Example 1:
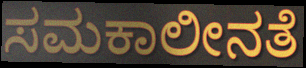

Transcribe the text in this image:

ಸಮಕಾಲೀನತೆ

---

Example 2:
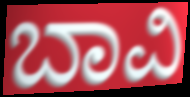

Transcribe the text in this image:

ಬಾವಿ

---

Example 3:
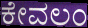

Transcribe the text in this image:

ಕೇವಲಂ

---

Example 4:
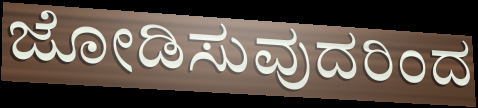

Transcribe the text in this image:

ಜೋಡಿಸುವುದರಿಂದ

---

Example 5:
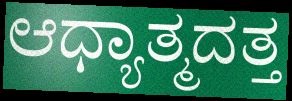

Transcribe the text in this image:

ಆಧ್ಯಾತ್ಮದತ್ತ